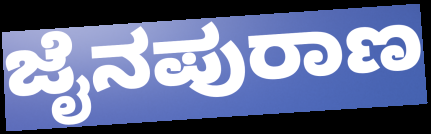
ಜೈನಪುರಾಣ